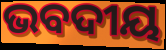
ଭବଦୀୟ